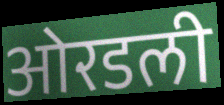
ओरडली